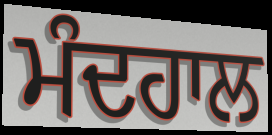
ਮੰਦਹਾਲ